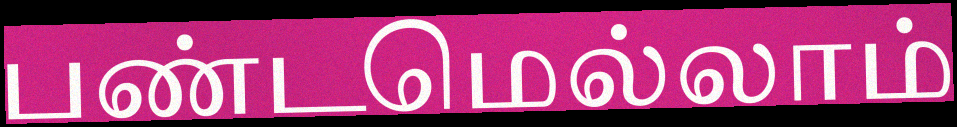
பண்டமெல்லாம்